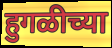
हुगळीच्या